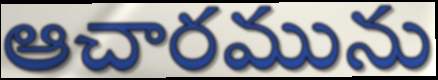
ఆచారమును